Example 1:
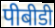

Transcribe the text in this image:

पीबीडी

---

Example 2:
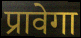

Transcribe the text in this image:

प्रावेगा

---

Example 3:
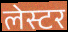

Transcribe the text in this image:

लेस्टर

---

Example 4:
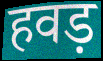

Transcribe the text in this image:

हवड़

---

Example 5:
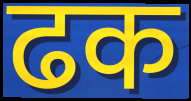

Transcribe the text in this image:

ढक